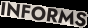
INFORMS